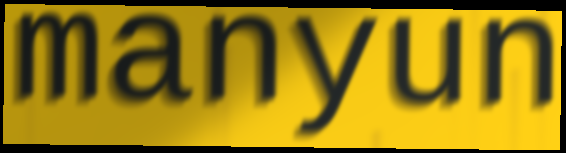
manyun